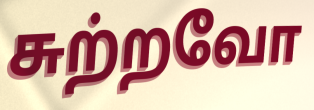
சுற்றவோ